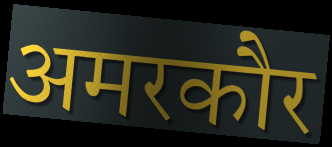
अमरकौर